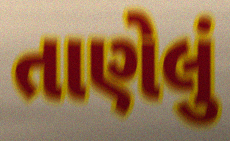
તાણેલું